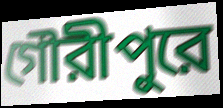
গৌরীপুরে